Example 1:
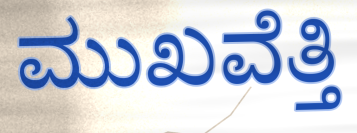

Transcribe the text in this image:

ಮುಖವೆತ್ತಿ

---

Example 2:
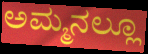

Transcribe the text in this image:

ಅಮ್ಮನಲ್ಲೂ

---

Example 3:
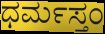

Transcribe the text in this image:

ಧರ್ಮಸ್ತಂ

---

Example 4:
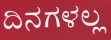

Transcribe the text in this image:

ದಿನಗಳಲ್ಲ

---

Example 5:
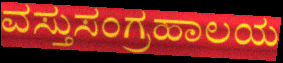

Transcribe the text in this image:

ವಸ್ತುಸಂಗ್ರಹಾಲಯ